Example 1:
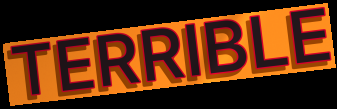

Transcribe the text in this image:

TERRIBLE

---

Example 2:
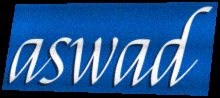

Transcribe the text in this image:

aswad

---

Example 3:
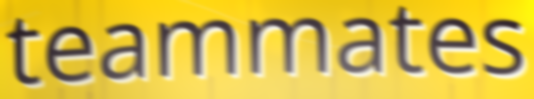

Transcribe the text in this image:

teammates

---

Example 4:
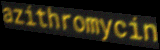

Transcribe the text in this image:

azithromycin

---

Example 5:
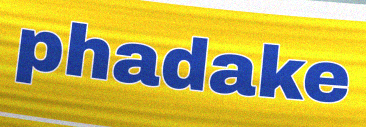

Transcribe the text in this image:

phadake